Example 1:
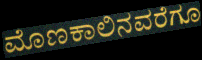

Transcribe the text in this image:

ಮೊಣಕಾಲಿನವರೆಗೂ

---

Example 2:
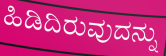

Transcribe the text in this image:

ಹಿಡಿದಿರುವುದನ್ನು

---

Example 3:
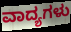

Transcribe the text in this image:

ವಾದ್ಯಗಳು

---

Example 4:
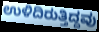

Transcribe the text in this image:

ಉಳಿದಿರುತ್ತಿದ್ದವು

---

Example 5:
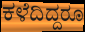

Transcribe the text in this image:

ಕಳೆದಿದ್ದರೂ